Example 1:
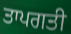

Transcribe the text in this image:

ਤਾਪਗਤੀ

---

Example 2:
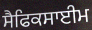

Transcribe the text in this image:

ਸੈਫਿਕਸਾਈਮ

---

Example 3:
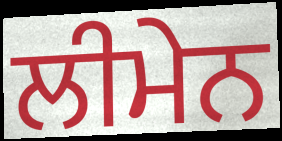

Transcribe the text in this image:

ਲੀਮੇਨ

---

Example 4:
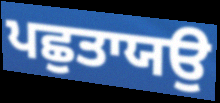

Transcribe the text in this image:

ਪਛੁਤਾਯਉ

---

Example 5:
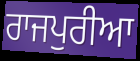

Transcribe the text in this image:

ਰਾਜਪੁਰੀਆ